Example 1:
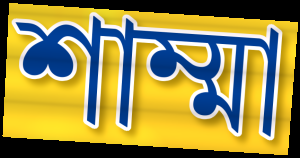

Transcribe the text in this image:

শাম্মা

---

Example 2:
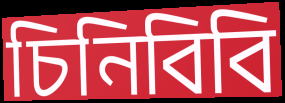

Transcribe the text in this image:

চিনিবিবি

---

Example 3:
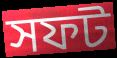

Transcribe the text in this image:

সফট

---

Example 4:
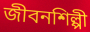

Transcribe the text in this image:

জীবনশিল্পী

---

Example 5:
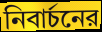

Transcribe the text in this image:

নিবার্চনের